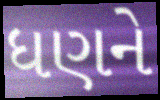
ધણને